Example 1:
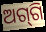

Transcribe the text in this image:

ଅଗ୍‌ଗି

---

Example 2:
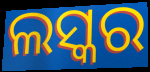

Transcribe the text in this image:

ଲସ୍କର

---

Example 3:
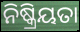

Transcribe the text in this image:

ନିଷ୍କ୍ରିୟତା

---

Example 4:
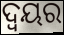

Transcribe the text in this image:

ଦ୍ବୟର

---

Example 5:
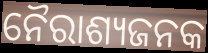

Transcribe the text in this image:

ନୈରାଶ୍ୟଜନକ